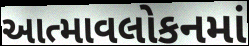
આત્માવલોકનમાં